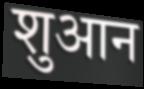
शुआन